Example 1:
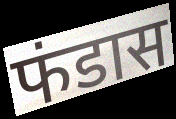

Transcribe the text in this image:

फंडास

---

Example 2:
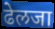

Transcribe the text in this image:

ढेलजा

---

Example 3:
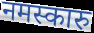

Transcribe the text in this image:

नमस्कारु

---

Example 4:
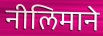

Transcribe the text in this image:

नीलिमाने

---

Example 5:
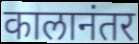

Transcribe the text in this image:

कालानंतर